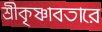
শ্রীকৃষ্ণাবতারে